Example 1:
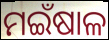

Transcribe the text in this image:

ମଇଁଷାଳ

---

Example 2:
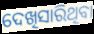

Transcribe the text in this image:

ଦେଖିସାରିଥିବା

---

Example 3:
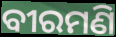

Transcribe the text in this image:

ବୀରମଣି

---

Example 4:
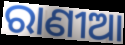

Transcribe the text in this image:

ରାଣୀଆ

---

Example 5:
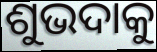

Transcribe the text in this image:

ଶୁଭଦାକୁ